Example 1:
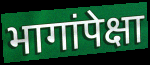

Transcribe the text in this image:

भागांपेक्षा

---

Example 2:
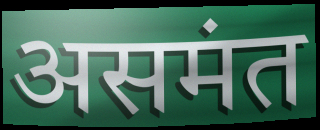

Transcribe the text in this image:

असमंत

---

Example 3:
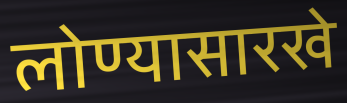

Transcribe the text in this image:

लोण्यासारखे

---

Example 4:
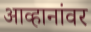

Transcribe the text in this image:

आव्हानांवर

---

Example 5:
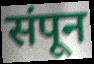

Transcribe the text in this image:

संपून